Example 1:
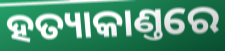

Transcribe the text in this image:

ହତ୍ୟାକାଣ୍ତରେ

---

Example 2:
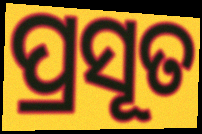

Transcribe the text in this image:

ପ୍ରସୂତ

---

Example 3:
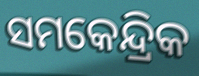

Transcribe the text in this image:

ସମକେନ୍ଦ୍ରିକ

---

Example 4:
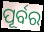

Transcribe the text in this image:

ପୂର୍ବର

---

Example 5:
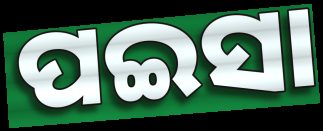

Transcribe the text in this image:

ପଇସା